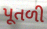
પૂતળી